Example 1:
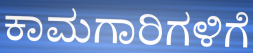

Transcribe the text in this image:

ಕಾಮಗಾರಿಗಳಿಗೆ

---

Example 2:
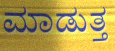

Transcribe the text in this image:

ಮಾಡುತ್ತ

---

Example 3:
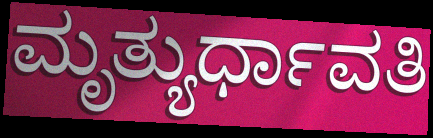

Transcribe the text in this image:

ಮೃತ್ಯುರ್ಧಾವತಿ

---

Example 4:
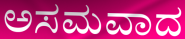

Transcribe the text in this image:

ಅಸಮವಾದ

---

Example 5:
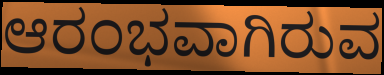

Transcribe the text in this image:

ಆರಂಭವಾಗಿರುವ